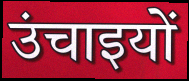
उंचाइयों